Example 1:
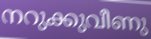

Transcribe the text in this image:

നറുക്കുവീണു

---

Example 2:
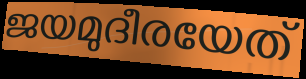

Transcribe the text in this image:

ജയമുദീരയേത്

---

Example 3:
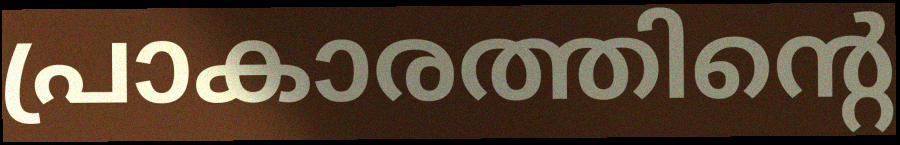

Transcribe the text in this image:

പ്രാകാരത്തിന്റെ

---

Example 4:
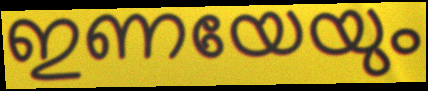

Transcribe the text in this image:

ഇണയേയും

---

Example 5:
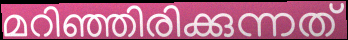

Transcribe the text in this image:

മറിഞ്ഞിരിക്കുന്നത്